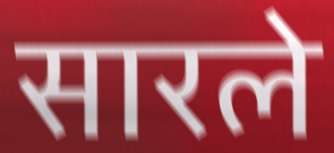
सारले